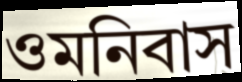
ওমনিবাস